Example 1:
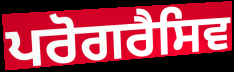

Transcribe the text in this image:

ਪਰੋਗਰੈਸਿਵ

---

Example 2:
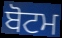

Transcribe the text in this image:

ਬੋਟਮ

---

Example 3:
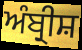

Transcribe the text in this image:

ਅੰਬ੍ਰੀਸ਼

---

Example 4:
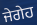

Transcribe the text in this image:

ਜੇਗੇਹ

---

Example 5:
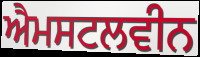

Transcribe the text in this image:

ਐਮਸਟਲਵੀਨ